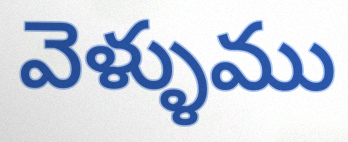
వెళ్ళుము